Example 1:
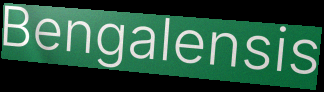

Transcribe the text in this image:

Bengalensis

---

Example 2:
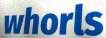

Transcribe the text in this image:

whorls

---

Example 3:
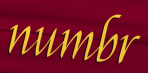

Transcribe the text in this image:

numbr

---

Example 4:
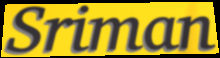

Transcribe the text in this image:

Sriman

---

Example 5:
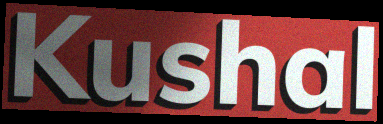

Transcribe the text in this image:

Kushal